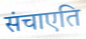
संचाएति